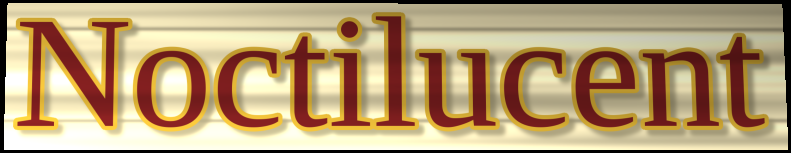
Noctilucent